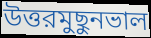
উত্তরমুছুনভাল